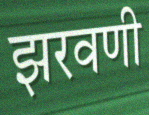
झरवणी